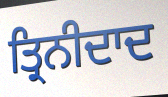
ਤ੍ਰਿਨੀਦਾਦ